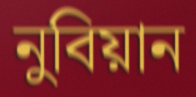
নুবিয়ান